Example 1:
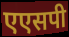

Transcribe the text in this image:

एएसपी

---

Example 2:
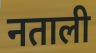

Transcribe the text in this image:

नताली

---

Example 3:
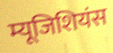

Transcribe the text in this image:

म्यूजिशियंस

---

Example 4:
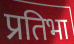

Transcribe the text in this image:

प्रतिभा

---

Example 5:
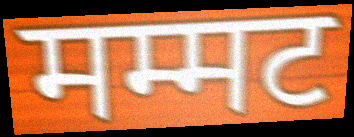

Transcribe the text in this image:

मम्मट